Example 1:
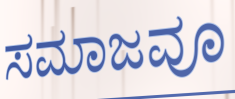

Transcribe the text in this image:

ಸಮಾಜವೂ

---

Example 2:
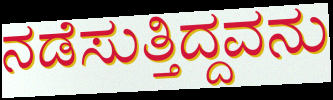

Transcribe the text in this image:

ನಡೆಸುತ್ತಿದ್ದವನು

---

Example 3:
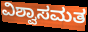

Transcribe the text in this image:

ವಿಶ್ವಾಸಮತ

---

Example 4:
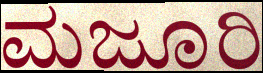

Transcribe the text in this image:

ಮಜೂರಿ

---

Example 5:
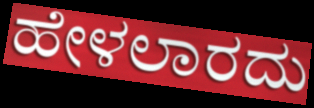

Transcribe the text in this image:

ಹೇಳಲಾರದು